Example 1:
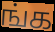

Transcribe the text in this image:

ங்க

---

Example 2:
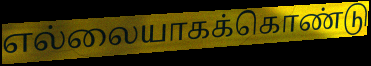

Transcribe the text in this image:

எல்லையாகக்கொண்டு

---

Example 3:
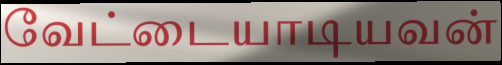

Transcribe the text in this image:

வேட்டையாடியவன்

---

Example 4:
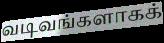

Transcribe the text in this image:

வடிவங்களாகக்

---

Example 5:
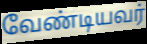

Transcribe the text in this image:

வேண்டியவர்